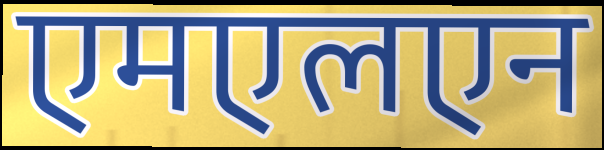
एमएलएन